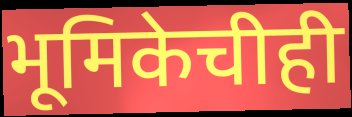
भूमिकेचीही